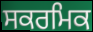
ਸਕਰਮਿਕ